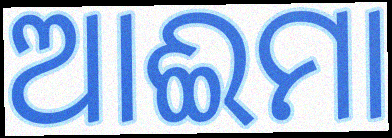
ଆଈମା